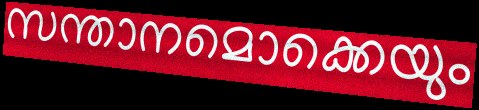
സന്താനമൊക്കെയും